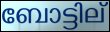
ബോട്ടില്